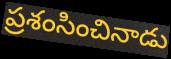
ప్రశంసించినాడు